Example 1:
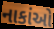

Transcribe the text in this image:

નાકાંઓ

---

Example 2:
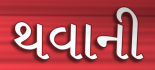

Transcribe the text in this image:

થવાની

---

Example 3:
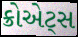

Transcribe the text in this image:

ક્રોએટ્સ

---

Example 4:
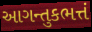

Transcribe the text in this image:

આગન્તુકભત્તં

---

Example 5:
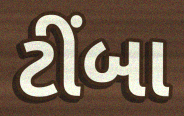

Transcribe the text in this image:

ટીંબા